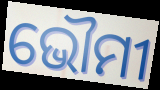
ଭୌମୀ